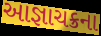
આજ્ઞાચક્રના